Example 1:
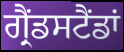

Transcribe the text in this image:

ਗ੍ਰੈਂਡਸਟੈਂਡਾਂ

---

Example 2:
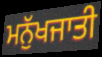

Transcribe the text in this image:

ਮਨੁੱਖਜਾਤੀ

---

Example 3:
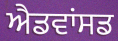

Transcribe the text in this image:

ਐਡਵਾਂਸਡ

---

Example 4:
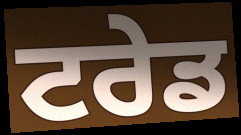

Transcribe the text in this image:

ਟਰੇਡ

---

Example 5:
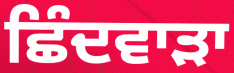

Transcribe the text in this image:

ਛਿੰਦਵਾੜਾ